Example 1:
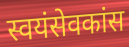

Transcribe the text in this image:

स्वयंसेवकांस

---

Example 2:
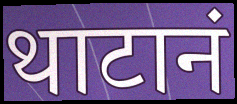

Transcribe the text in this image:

थाटानं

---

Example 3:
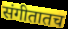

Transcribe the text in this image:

संगीतातच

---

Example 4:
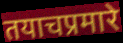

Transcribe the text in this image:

तयाचप्रमारे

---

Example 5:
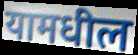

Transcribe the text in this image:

यामधील